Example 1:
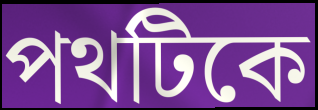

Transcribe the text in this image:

পথটিকে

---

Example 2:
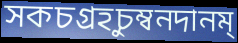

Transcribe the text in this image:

সকচগ্রহচুম্বনদানম্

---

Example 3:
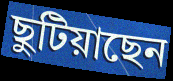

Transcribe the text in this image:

ছুটিয়াছেন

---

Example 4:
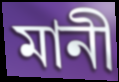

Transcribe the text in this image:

মানী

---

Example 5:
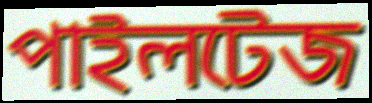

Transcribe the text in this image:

পাইলটেজ